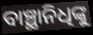
ବାଞ୍ଛାନିଧିଙ୍କୁ